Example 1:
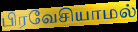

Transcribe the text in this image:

பிரவேசியாமல்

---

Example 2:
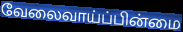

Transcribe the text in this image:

வேலைவாய்ப்பின்மை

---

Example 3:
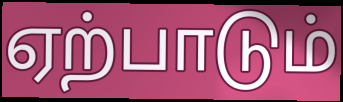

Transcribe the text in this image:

ஏற்பாடும்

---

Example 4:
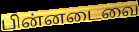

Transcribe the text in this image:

பின்னடைவை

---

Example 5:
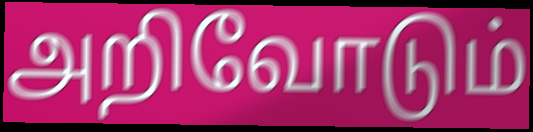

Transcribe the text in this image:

அறிவோடும்